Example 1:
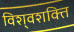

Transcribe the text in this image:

विश्वशक्ति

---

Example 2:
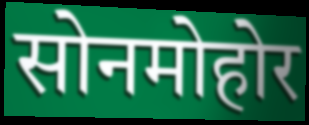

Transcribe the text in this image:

सोनमोहोर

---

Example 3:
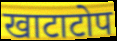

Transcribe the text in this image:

खाटाटोप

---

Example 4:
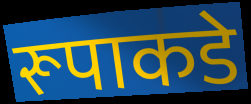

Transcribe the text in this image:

रूपाकडे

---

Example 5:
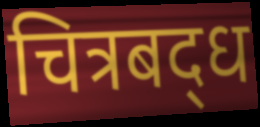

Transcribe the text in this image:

चित्रबद्ध